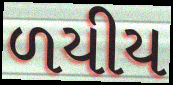
ળયીય